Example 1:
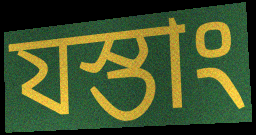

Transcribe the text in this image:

যস্তাং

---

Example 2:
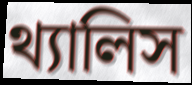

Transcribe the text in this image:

থ্যালিস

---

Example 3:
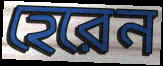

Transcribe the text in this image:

হেরেন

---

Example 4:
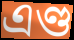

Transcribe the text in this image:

এণ্ড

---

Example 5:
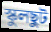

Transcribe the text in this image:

স্কুলছুট